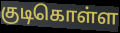
குடிகொள்ள